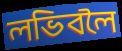
লভিবলৈ